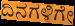
ದಿನಗಳಿಗೇ